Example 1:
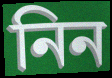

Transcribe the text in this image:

নিন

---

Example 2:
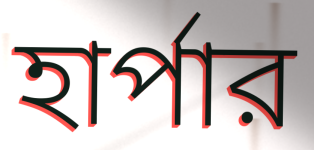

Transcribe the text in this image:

হার্পার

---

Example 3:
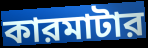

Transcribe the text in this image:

কারমাটার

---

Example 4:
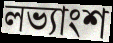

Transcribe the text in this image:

লভ্যাংশ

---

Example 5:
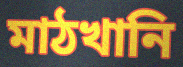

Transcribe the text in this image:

মাঠখানি